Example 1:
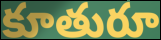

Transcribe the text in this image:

కూతురూ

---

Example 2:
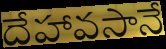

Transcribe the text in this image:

దేహావసానే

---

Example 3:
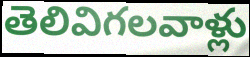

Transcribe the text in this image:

తెలివిగలవాళ్లు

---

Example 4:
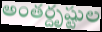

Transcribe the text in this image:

అంతర్దృష్టుల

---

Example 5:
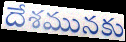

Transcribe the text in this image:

దేశమునకు